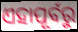
ଏହାପୂର୍ବରୁ